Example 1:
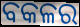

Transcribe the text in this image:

ବକଳର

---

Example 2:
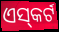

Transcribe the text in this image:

ଏସ୍‌କର୍ଟ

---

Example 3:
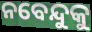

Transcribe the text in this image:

ନବେନ୍ଦୁକୁ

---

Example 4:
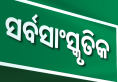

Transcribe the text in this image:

ସର୍ବସାଂସ୍କୃତିକ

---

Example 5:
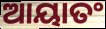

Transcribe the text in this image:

ଆୟାତଂ